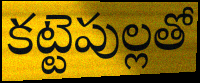
కట్టెపుల్లతో